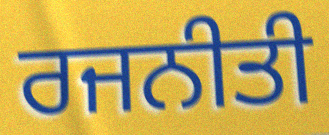
ਰਜਨੀਤੀ